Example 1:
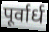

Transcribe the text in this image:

पूर्वार्ध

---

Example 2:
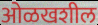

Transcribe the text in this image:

ओळखशील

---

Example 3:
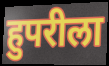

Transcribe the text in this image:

हुपरीला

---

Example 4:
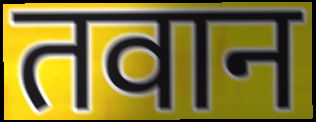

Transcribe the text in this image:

तवान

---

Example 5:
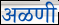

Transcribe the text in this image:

अळणी